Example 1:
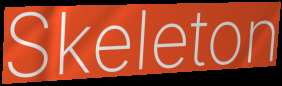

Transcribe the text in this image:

Skeleton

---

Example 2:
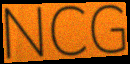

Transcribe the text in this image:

NCG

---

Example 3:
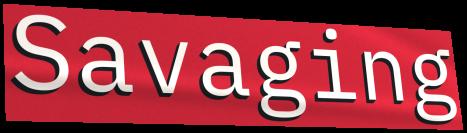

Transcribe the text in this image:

Savaging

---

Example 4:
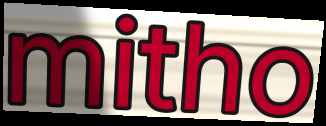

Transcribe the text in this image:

mitho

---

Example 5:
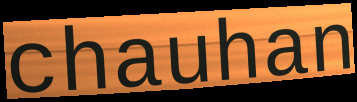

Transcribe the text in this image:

chauhan